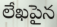
లేఖపైన